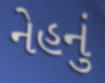
નેહનું